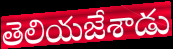
తెలియజేశాడు